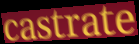
castrate